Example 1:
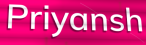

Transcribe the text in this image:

Priyansh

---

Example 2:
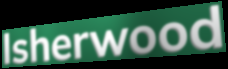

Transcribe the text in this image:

Isherwood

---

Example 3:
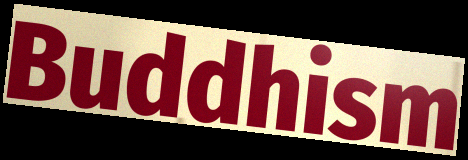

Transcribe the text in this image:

Buddhism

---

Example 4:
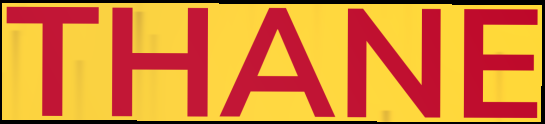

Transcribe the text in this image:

THANE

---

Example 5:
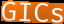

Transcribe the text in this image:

GICs